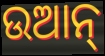
ଉଆନ୍